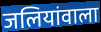
जलियांवाला